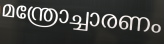
മന്ത്രോച്ചാരണം